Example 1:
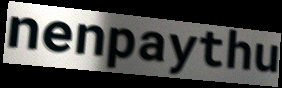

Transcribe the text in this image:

nenpaythu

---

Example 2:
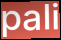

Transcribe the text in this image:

pali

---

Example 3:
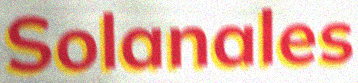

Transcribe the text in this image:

Solanales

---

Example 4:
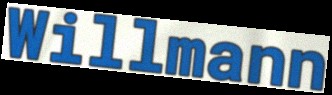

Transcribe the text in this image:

Willmann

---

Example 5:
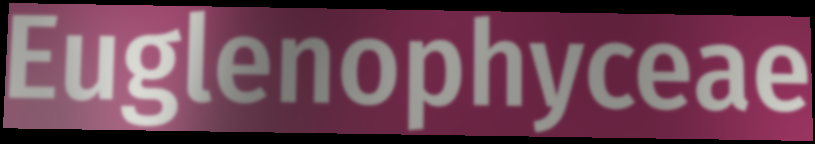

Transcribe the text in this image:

Euglenophyceae